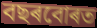
বছৰবোৰত